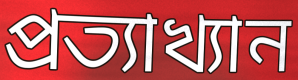
প্ৰত্যাখ্যান